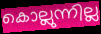
കൊല്ലുന്നില്ല